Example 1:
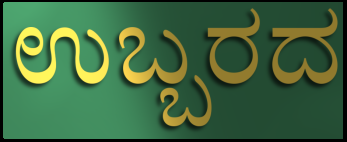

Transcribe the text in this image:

ಉಬ್ಬರದ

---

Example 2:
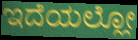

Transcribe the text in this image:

ಇದೆಯಲ್ಲೋ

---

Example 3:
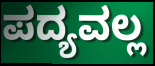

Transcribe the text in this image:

ಪದ್ಯವಲ್ಲ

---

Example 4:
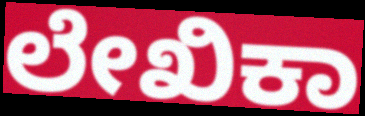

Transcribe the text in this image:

ಲೇಖಿಕಾ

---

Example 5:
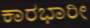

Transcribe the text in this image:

ಕಾರಭಾರೀ